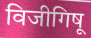
विजीगिषू